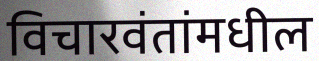
विचारवंतांमधील